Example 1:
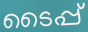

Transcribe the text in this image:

ടൈപ്പ്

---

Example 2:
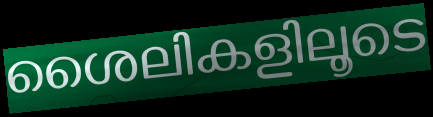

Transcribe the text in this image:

ശൈലികളിലൂടെ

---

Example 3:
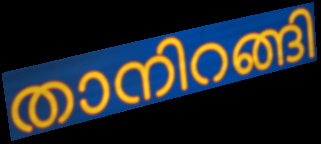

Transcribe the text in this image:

താനിറങ്ങി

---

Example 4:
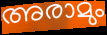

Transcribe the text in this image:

അരാമും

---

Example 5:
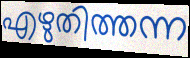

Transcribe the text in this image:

എഴുതിത്തന്ന